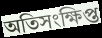
অতিসংক্ষিপ্ত